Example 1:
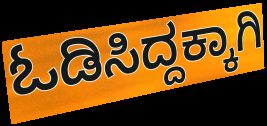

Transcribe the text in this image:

ಓಡಿಸಿದ್ದಕ್ಕಾಗಿ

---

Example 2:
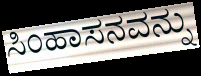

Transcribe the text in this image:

ಸಿಂಹಾಸನವನ್ನು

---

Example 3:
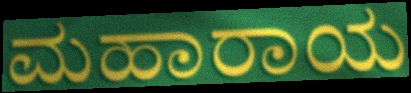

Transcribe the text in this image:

ಮಹಾರಾಯ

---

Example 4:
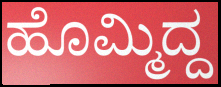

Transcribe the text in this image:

ಹೊಮ್ಮಿದ್ದ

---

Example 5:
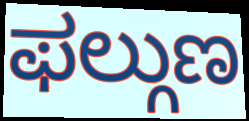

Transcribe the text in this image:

ಫಲ್ಗುಣ